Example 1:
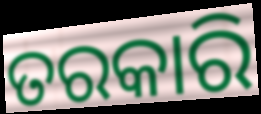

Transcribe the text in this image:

ତରକାରି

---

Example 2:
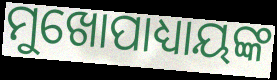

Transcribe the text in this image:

ମୁଖୋପାଧ୍ୟାୟଙ୍କ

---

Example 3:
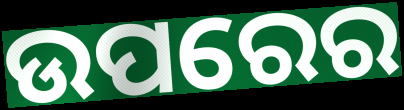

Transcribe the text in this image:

ଉପରେର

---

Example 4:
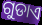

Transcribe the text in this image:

ଗୁଡାଏ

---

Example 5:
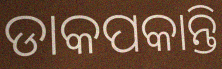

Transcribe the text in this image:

ଡାକପକାନ୍ତି